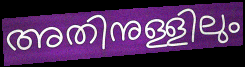
അതിനുള്ളിലും